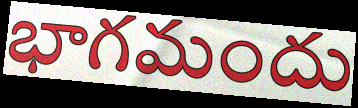
భాగమందు